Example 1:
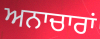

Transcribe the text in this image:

ਅਨਾਚਾਰਾਂ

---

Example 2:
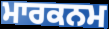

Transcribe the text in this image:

ਮਾਰਕਨਮ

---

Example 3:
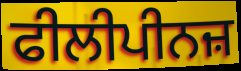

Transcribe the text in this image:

ਫੀਲੀਪੀਨਜ਼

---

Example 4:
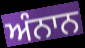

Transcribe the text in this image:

ਅੰਨਾਨ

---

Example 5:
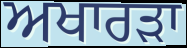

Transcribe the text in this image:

ਅਖਾਰੜਾ